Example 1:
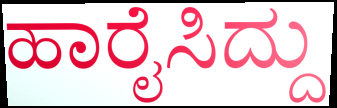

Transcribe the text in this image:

ಹಾರೈಸಿದ್ದು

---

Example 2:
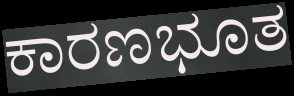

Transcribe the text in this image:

ಕಾರಣಭೂತ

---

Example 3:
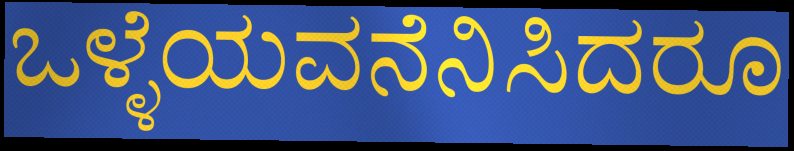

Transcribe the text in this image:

ಒಳ್ಳೆಯವನೆನಿಸಿದರೂ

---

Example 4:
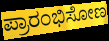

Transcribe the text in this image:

ಪ್ರಾರಂಭಿಸೋಣ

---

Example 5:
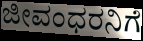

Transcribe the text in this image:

ಜೀವಂಧರನಿಗೆ